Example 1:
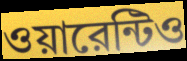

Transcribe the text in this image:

ওয়ারেন্টিও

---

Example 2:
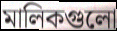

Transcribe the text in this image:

মালিকগুলো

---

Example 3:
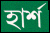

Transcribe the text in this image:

হার্শ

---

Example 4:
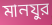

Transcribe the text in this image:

মানযুর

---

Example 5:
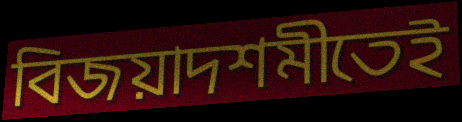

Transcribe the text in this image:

বিজয়াদশমীতেই